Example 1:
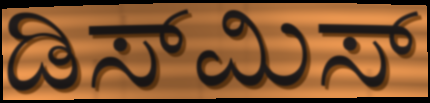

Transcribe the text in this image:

ಡಿಸ್‌ಮಿಸ್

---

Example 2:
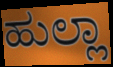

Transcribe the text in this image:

ಹುಲ್ಲಾ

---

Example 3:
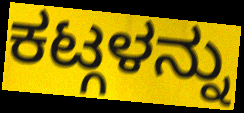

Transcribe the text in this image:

ಕಟ್ಗಳನ್ನು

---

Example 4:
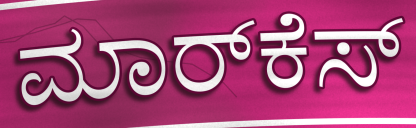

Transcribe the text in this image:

ಮಾರ್‌ಕೆಸ್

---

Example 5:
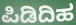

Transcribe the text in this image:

ಪಿಡಿದಿಹ